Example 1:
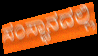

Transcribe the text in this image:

ಸಂಸ್ಥಾನದಲ್ಲಿ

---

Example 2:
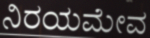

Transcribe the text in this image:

ನಿರಯಮೇವ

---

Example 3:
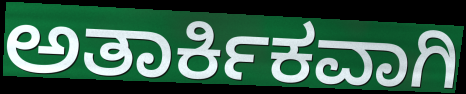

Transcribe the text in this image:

ಅತಾರ್ಕಿಕವಾಗಿ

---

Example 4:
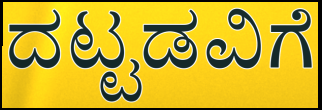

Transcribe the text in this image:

ದಟ್ಟಡವಿಗೆ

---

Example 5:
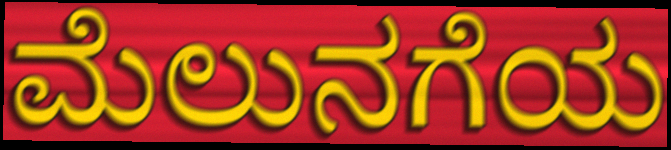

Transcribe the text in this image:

ಮೆಲುನಗೆಯ